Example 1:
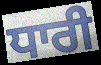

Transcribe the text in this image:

ਧਾਰੀ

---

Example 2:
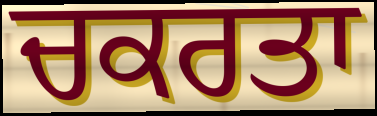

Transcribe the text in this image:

ਚਕਰਤਾ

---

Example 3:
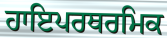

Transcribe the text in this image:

ਹਾਇਪਰਥਰਮਿਕ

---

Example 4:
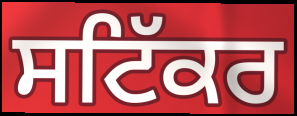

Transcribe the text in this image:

ਸਟਿੱਕਰ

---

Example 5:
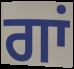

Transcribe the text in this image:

ਗਾਂ